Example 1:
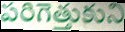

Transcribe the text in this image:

పరిగెత్తుకుని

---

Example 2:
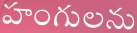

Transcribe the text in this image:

హంగులను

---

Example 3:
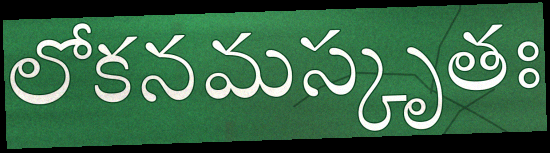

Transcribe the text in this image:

లోకనమస్కృతః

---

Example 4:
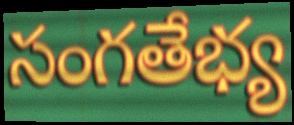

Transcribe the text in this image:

సంగతేభ్య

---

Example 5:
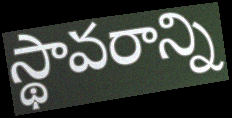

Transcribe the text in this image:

స్థావరాన్ని